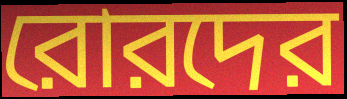
রোরদের